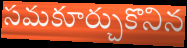
సమకూర్చుకొనిన